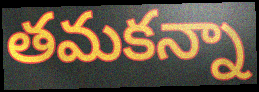
తమకన్నా